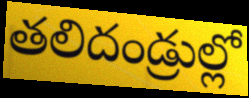
తలిదండ్రుల్లో